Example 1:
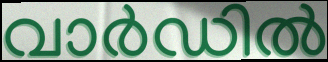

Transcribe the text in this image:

വാർഡിൽ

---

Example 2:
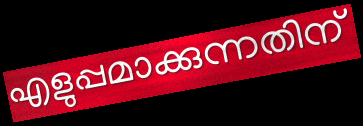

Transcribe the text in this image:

എളുപ്പമാക്കുന്നതിന്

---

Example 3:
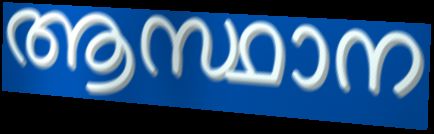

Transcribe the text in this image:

ആസ്ഥാന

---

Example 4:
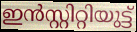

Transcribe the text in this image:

ഇൻസ്റ്റിറ്റിയുട്ട്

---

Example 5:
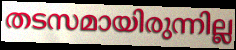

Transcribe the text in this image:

തടസമായിരുന്നില്ല